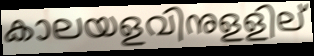
കാലയളവിനുളളില്